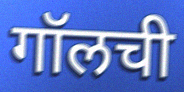
गॉलची